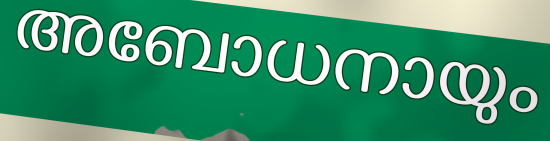
അബോധനായും